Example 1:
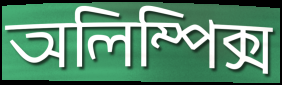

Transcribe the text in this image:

অলিম্পিক্স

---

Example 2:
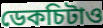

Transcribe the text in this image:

ডেকচিটাও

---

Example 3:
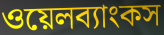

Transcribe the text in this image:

ওয়েলব্যাংকস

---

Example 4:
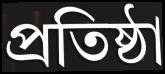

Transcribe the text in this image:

প্রতিষ্ঠা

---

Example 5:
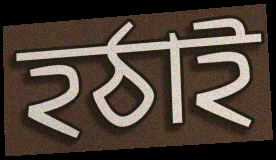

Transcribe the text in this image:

হঠাই